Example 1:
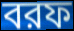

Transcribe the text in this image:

বরফ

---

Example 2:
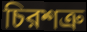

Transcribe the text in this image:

চিরশত্রু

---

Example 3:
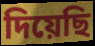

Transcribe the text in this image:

দিয়েছি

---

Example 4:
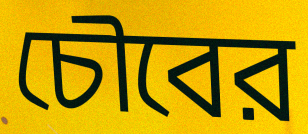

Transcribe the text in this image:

চৌবের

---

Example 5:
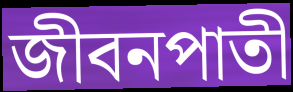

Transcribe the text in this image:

জীবনপাতী